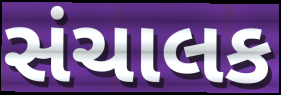
સંચાલક